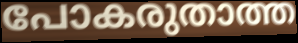
പോകരുതാത്ത